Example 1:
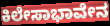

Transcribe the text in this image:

ಕಿಲೇಸಾಭಾವೇನ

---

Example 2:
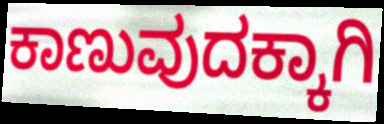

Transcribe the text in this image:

ಕಾಣುವುದಕ್ಕಾಗಿ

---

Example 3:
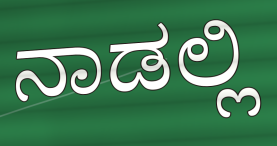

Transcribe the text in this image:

ನಾಡಲ್ಲಿ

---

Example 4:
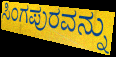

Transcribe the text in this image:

ಸಿಂಗಪುರವನ್ನು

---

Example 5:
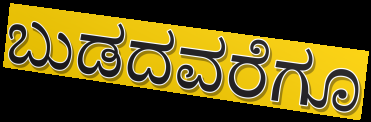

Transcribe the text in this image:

ಬುಡದವರೆಗೂ